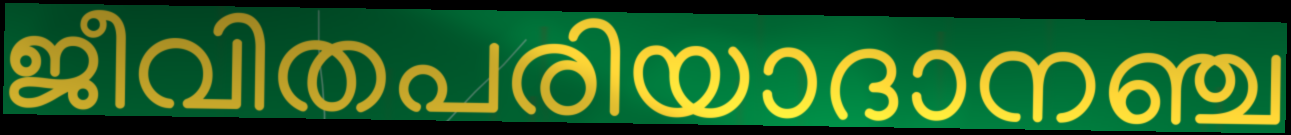
ജീവിതപരിയാദാനഞ്ച